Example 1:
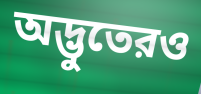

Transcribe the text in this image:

অদ্ভুতেরও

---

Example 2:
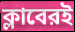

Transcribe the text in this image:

ক্লাবেরই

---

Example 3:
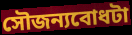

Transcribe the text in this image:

সৌজন্যবোধটা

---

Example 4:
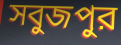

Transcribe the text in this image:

সবুজপুর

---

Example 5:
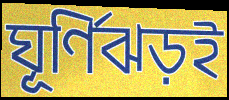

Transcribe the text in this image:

ঘূর্ণিঝড়ই